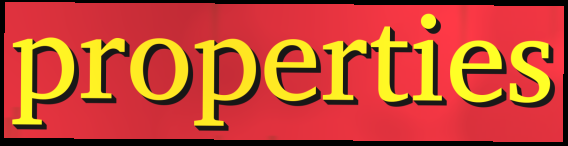
properties